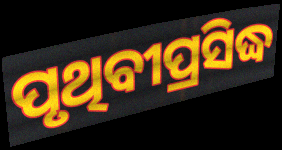
ପୃଥିବୀପ୍ରସିଦ୍ଧ